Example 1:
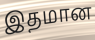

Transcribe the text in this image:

இதமான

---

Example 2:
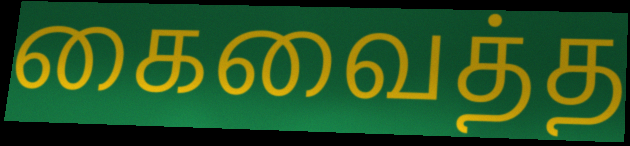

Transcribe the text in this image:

கைவைத்த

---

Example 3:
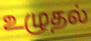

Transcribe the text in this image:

உழுதல்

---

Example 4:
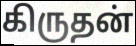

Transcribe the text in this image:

கிருதன்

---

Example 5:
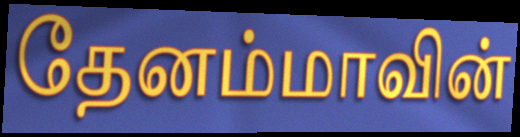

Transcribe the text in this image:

தேனம்மாவின்